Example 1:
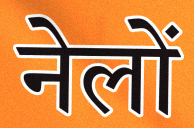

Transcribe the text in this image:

नेलों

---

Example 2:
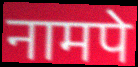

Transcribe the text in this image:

नामपे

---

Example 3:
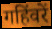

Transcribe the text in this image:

गहिंवरें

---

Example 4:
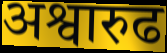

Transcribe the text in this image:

अश्वारुढ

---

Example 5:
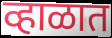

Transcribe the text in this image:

व्हाळात